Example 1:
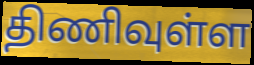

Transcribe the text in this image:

திணிவுள்ள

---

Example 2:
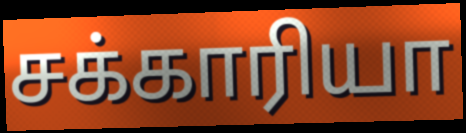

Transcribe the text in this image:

சக்காரியா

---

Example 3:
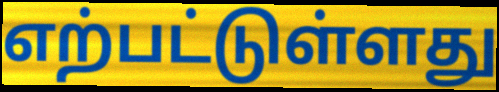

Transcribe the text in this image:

எற்பட்டுள்ளது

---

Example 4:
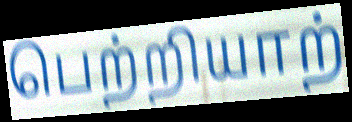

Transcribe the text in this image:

பெற்றியாற்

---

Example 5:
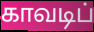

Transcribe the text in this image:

காவடிப்